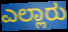
ಎಲ್ಲಾರು